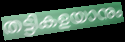
തട്ടികളയാനും